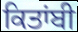
ਕਿਤਾਂਬੀ